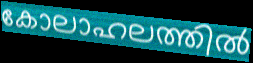
കോലാഹലത്തിൽ